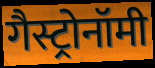
गैस्ट्रोनॉमी